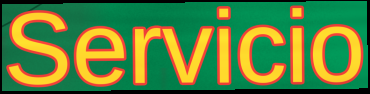
Servicio